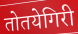
तोतयेगिरी